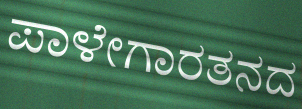
ಪಾಳೇಗಾರತನದ